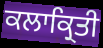
ਕਲਾਕ੍ਰਿਤੀ